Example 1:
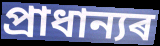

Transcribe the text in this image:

প্ৰাধান্যৰ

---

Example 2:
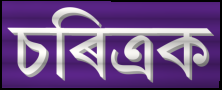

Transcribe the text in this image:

চৰিত্ৰক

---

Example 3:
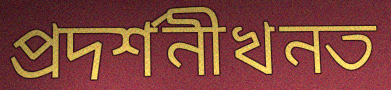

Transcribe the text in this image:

প্ৰদৰ্শনীখনত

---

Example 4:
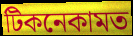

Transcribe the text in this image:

টিকনেকামত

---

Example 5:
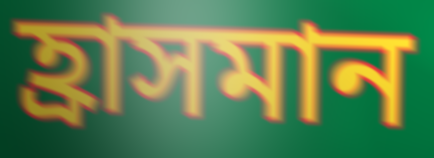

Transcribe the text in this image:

হ্ৰাসমান